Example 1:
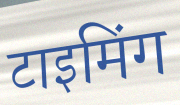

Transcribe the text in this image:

टाइमिंग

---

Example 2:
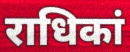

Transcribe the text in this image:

राधिकां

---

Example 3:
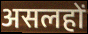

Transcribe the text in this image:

असलहों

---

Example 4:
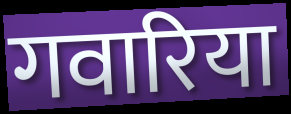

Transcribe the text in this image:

गवारिया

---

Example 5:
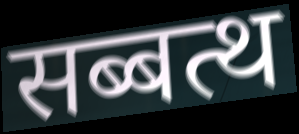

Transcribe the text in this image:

सब्बत्थ